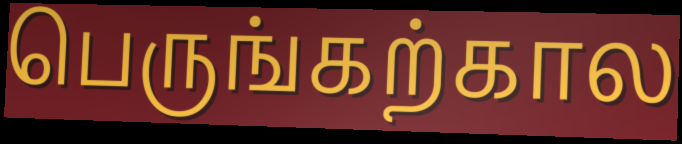
பெருங்கற்கால